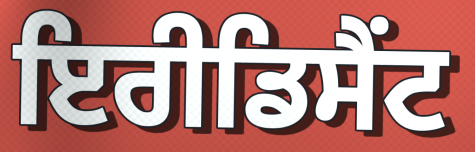
ਇਰੀਡਿਸੈਂਟ